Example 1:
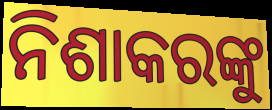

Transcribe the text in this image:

ନିଶାକରଙ୍କୁ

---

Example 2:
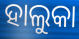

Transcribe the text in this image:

ହାଲୁକା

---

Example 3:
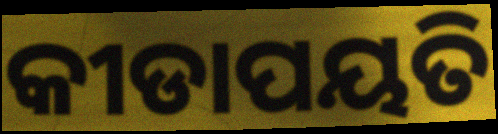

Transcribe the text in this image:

କୀଡାପୟତି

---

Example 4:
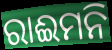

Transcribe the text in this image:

ରାଈମନି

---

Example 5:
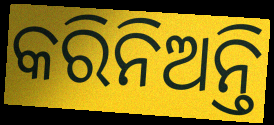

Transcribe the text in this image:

କରିନିଅନ୍ତି